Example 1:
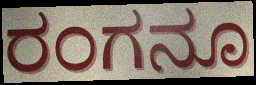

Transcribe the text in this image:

ರಂಗನೂ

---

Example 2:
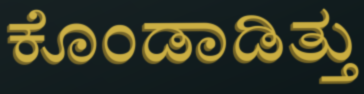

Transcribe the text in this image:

ಕೊಂಡಾಡಿತ್ತು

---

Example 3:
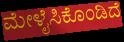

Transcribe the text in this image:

ಮೇಳೈಸಿಕೊಂಡಿದೆ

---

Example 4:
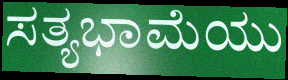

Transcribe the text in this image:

ಸತ್ಯಭಾಮೆಯು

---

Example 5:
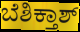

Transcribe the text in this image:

ಬೆಶಿಕ್ತಾಶ್